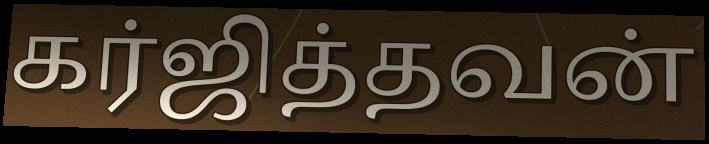
கர்ஜித்தவன்